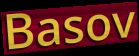
Basov